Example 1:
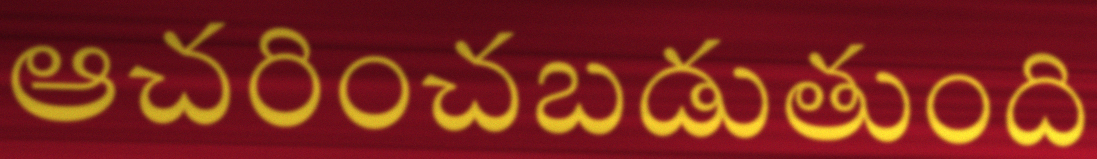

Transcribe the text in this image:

ఆచరించబడుతుంది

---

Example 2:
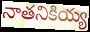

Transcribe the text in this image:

నాతనికియ్య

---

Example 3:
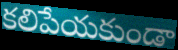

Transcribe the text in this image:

కలిపేయకుండా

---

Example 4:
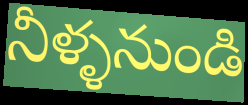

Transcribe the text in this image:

నీళ్ళనుండి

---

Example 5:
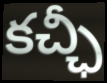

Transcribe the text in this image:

కచ్ఛీ